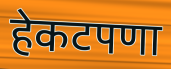
हेकटपणा